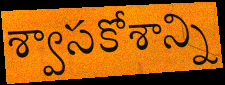
శ్వాసకోశాన్ని